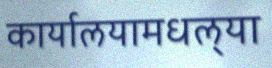
कार्यालयामधल्या